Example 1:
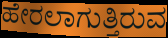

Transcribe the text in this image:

ಹೇರಲಾಗುತ್ತಿರುವ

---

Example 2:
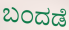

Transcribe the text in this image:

ಬಂದಡೆ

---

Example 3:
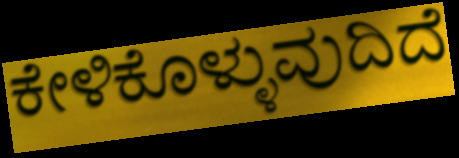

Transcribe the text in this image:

ಕೇಳಿಕೊಳ್ಳುವುದಿದೆ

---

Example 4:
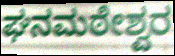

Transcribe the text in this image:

ಘನಮಠೇಶ್ವರ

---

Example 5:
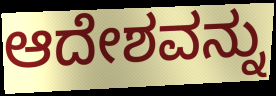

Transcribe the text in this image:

ಆದೇಶವನ್ನು